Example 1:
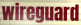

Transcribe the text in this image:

wireguard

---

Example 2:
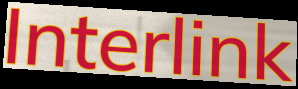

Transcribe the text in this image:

Interlink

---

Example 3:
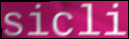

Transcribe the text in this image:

sicli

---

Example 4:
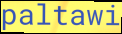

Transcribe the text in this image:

paltawi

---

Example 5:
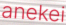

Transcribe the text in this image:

anekei